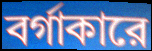
বর্গাকারে